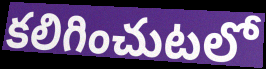
కలిగించుటలో